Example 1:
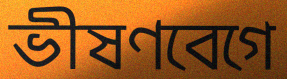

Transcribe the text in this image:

ভীষণবেগে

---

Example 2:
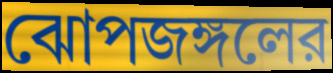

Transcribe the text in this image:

ঝোপজঙ্গলের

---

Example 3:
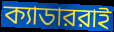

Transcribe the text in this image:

ক্যাডাররাই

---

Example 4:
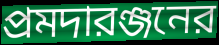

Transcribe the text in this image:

প্রমদারঞ্জনের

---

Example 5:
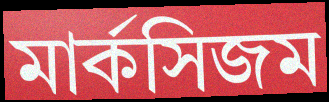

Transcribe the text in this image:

মার্কসিজম